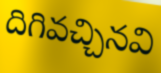
దిగివచ్చినవి